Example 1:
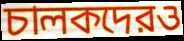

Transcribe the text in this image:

চালকদেরও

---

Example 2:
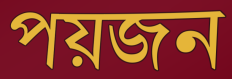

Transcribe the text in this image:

পয়জন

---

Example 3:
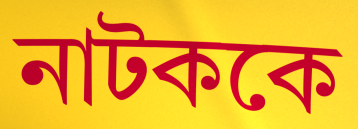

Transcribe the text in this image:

নাটককে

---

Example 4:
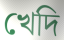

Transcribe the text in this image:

খেদি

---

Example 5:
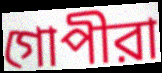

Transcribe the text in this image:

গোপীরা